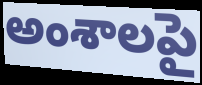
అంశాలపై